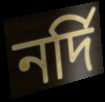
নর্দি